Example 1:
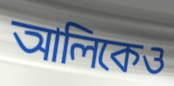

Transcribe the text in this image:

আলিকেও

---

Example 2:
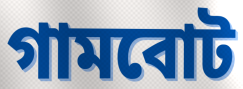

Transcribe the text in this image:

গামবোট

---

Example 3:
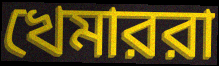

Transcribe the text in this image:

খেমাররা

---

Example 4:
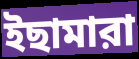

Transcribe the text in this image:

ইছামারা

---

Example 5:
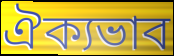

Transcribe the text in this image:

ঐক্যভাব